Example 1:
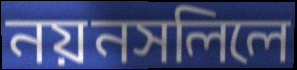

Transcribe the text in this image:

নয়নসলিলে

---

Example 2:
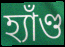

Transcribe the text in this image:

হ্যাঁণ্ড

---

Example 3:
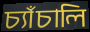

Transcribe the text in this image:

চ্যাঁচালি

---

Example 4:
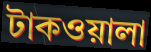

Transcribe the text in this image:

টাকওয়ালা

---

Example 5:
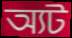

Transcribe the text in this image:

অ্যট